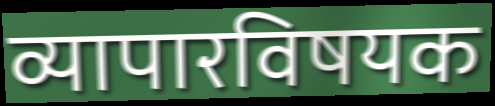
व्यापारविषयक